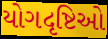
યોગદૃષ્ટિઓ